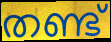
തണ്ട്